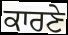
ਕਾਰਣੇ